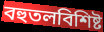
বহুতলবিশিষ্ট